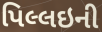
પિલ્લઇની